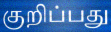
குறிப்பது